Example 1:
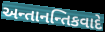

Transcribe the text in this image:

અન્તાનન્તિકવાદે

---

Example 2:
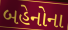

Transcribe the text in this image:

બહેનોના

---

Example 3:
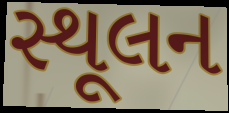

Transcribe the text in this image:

સ્થૂલન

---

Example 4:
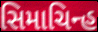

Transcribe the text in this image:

સિમાચિન્હ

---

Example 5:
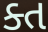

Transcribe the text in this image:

ક્ત